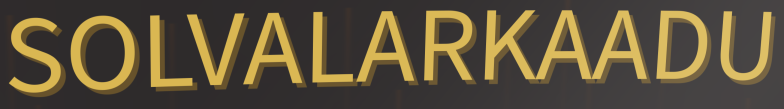
SOLVALARKAADU